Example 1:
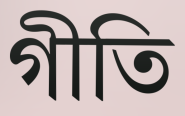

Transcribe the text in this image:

গীতি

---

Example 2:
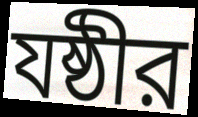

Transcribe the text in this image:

যষ্ঠীর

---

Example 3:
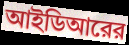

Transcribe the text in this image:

আইডিআরের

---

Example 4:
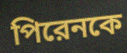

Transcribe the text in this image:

পিরেনকে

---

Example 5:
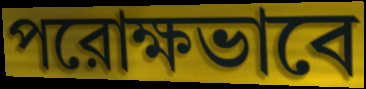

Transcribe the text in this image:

পরোক্ষভাবে